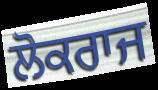
ਲੋਕਰਾਜ